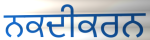
ਨਕਦੀਕਰਨ